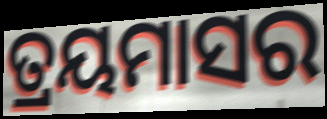
ତ୍ରୟମାସର